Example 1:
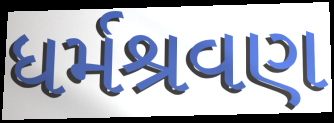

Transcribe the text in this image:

ધર્મશ્રવણ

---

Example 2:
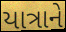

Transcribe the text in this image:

યાત્રાને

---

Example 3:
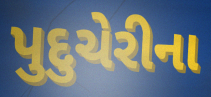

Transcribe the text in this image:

પુદુચેરીના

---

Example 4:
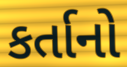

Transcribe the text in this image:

કર્તાનો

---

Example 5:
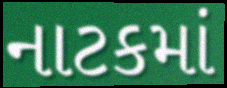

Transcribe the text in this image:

નાટકમાં